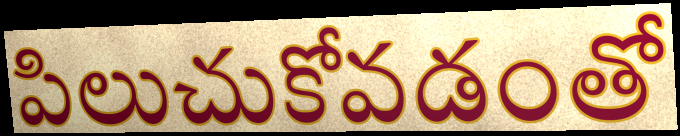
పిలుచుకోవడంతో